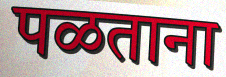
पळताना